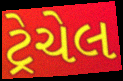
ટ્રેચેલ